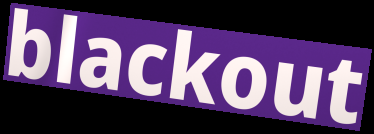
blackout